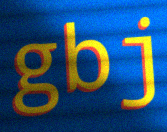
gbj